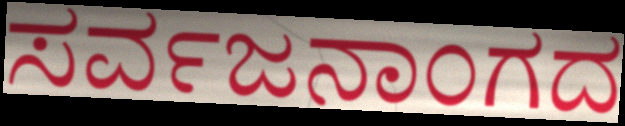
ಸರ್ವಜನಾಂಗದ